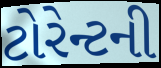
ટોરેન્ટની